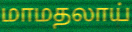
மாமதலாய்